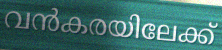
വൻകരയിലേക്ക്